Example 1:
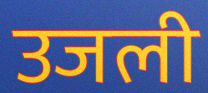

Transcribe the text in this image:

उजली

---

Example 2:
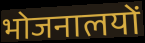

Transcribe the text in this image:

भोजनालयों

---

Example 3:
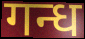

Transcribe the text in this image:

गन्ध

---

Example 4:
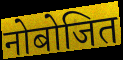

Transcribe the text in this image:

नोबोजित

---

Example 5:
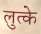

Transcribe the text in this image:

लुत्के